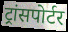
ट्रांसपोर्टर